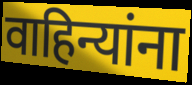
वाहिन्यांना